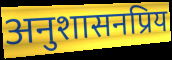
अनुशासनप्रिय